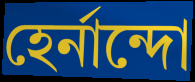
হের্নান্দো